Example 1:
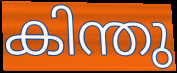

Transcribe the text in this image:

കിന്തു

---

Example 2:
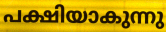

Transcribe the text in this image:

പക്ഷിയാകുന്നു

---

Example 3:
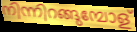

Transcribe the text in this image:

നിന്നിറങ്ങുമ്പോള്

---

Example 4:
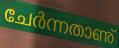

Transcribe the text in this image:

ചേർന്നതാണു്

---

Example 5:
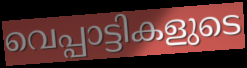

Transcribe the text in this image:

വെപ്പാട്ടികളുടെ